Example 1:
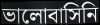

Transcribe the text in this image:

ভালোবাসিনি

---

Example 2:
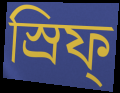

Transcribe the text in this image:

স্রিফ্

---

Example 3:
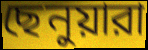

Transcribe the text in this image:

ছেনুয়ারা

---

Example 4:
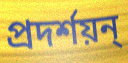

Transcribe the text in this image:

প্রদর্শয়ন্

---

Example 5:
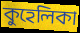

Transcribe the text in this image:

কুহেলিকা